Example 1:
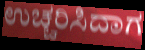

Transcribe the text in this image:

ಉಚ್ಚರಿಸಿದಾಗ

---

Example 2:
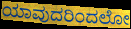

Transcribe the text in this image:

ಯಾವುದರಿಂದಲೋ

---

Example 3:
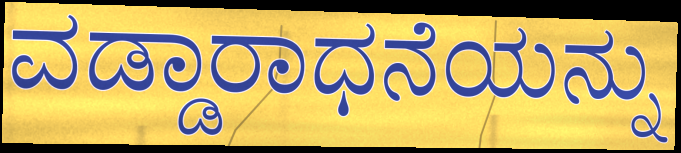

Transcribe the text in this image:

ವಡ್ಡಾರಾಧನೆಯನ್ನು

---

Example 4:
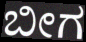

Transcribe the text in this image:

ಬೀಗ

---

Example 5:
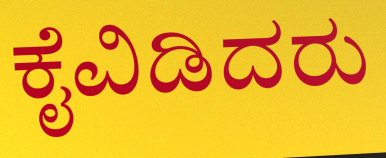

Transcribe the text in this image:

ಕೈವಿಡಿದರು